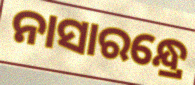
ନାସାରନ୍ଧ୍ରେ